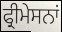
ਫ੍ਰੀਮੇਸਨਾਂ